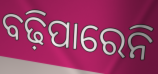
ବଢ଼ିପାରେନି